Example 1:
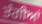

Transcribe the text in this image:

ਤੰਗੀਆਂ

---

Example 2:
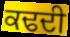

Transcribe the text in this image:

ਕਢਦੀ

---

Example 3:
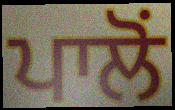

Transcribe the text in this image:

ਪਾਲੋਂ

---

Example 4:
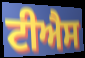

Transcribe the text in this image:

ਟੀਐਸ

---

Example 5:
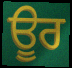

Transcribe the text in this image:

ਊਰ